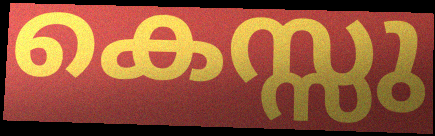
കെസ്സു